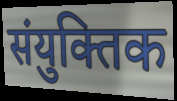
संयुक्‍तिक